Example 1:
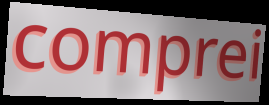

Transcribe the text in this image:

comprei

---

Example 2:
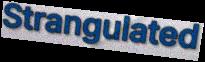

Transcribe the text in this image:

Strangulated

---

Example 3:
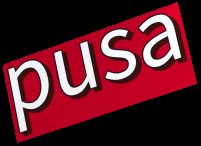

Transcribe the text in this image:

pusa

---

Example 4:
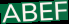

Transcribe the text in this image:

ABEF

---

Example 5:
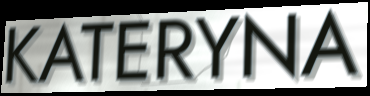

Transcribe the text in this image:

KATERYNA